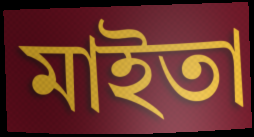
মাইতা